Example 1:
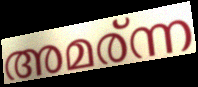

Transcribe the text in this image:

അമര്ന്ന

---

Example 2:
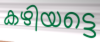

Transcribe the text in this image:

കഴിയട്ടെ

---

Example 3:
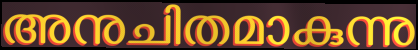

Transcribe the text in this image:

അനുചിതമാകുന്നു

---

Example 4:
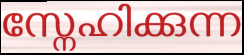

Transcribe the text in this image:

സ്നേഹിക്കുന്ന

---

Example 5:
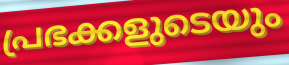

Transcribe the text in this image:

പ്രഭക്കളുടെയും